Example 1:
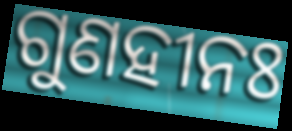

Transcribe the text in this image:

ଗୁଣହୀନଃ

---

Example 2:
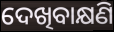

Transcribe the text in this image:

ଦେଖିବାକ୍ଷଣି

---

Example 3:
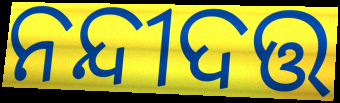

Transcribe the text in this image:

ନନ୍ଦୀଦତ୍ତ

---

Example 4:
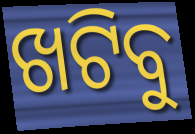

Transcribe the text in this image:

ଖଟିବୁ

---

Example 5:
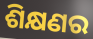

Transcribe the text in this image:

ଶିକ୍ଷଣର